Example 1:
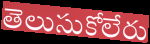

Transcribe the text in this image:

తెలుసుకోలేరు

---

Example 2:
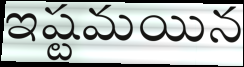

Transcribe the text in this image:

ఇష్టమయిన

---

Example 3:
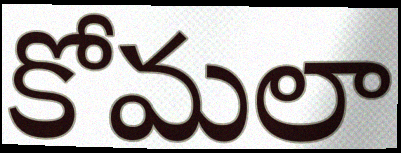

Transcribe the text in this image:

కోమలా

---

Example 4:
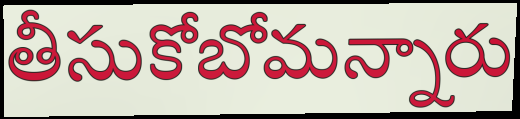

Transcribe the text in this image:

తీసుకోబోమన్నారు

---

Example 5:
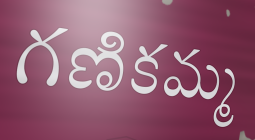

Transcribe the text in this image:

గణికమ్మ